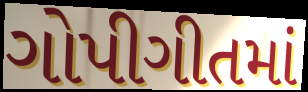
ગોપીગીતમાં